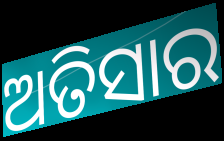
ଅତିସାର